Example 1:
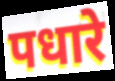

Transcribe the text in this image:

पधारे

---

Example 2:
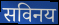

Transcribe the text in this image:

सविनय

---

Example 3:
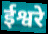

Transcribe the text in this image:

ईश्वरे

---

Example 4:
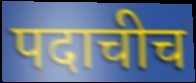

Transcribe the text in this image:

पदाचीच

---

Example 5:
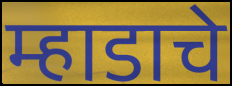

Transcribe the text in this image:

म्हाडाचे